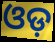
ଓଡ଼